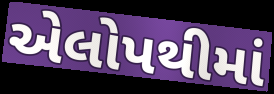
એલોપથીમાં